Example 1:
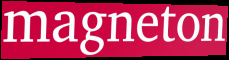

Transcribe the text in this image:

magneton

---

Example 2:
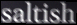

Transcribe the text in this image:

saltish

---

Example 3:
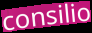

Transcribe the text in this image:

consilio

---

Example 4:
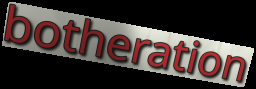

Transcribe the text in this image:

botheration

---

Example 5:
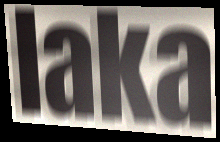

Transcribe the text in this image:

laka